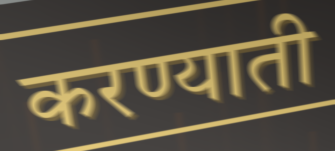
करण्याती